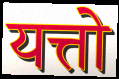
यत्तो